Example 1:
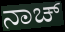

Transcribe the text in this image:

ನಾಚ್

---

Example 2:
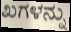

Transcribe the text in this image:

ಖಗಳನ್ನು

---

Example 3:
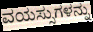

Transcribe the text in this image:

ವಯಸ್ಸುಗಳನ್ನು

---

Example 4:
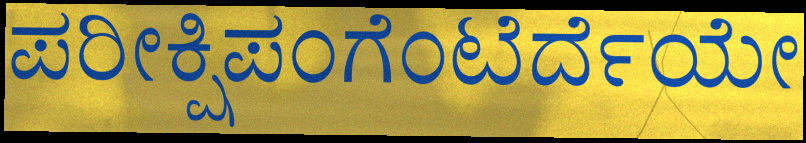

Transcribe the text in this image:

ಪರೀಕ್ಷಿಪಂಗೆಂಟೆರ್ದೆಯೇ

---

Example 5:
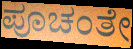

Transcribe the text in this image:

ಪೂಚಂತೇ